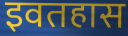
इवतहास